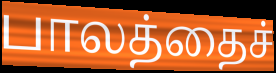
பாலத்தைச்